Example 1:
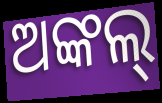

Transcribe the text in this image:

ଅଙ୍କଲ୍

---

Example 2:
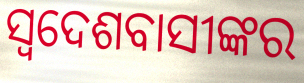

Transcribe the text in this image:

ସ୍ୱଦେଶବାସୀଙ୍କର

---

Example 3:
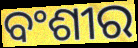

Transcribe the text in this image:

ବଂଶୀର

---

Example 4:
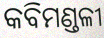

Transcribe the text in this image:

କବିମଣ୍ଡଳୀ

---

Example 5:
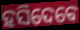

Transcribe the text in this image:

ହସିଦେବେ